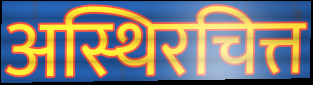
अस्थिरचित्त